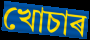
খোচাৰ